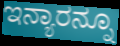
ಇನ್ಯಾರನ್ನೂ